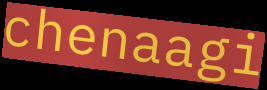
chenaagi